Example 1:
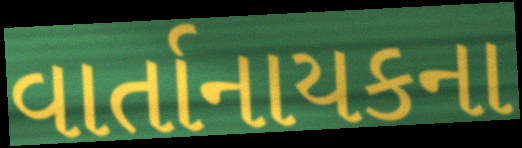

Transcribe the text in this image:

વાર્તાનાયકના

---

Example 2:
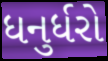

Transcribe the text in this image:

ધનુર્ધરો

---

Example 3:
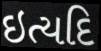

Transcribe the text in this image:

ઇત્યદિ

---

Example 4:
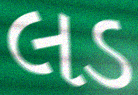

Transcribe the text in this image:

લડ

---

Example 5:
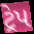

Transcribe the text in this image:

ટ્રેપ